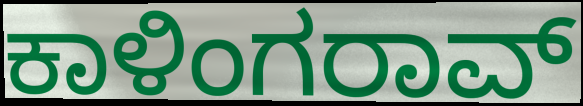
ಕಾಳಿಂಗರಾವ್